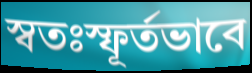
স্বতঃস্ফূৰ্তভাবে